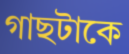
গাছটাকে